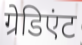
ग्रेडिएंट